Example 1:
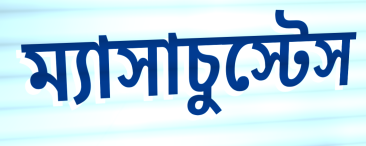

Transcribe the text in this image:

ম্যাসাচুস্টেস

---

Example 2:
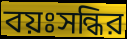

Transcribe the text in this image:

বয়ঃসন্ধির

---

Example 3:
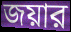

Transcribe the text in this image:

জয়ার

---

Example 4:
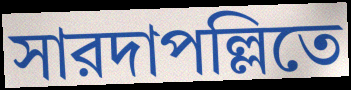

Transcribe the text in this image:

সারদাপল্লিতে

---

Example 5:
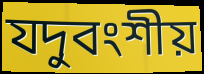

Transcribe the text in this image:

যদুবংশীয়